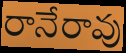
రానేరావు